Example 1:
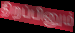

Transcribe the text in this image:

திறப்பினும்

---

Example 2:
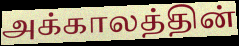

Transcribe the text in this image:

அக்காலத்தின்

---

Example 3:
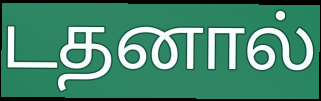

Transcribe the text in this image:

டதனால்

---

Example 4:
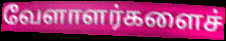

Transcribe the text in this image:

வேளாளர்களைச்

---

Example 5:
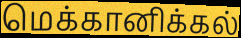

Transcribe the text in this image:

மெக்கானிக்கல்